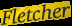
Fletcher